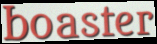
boaster